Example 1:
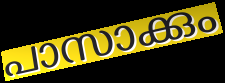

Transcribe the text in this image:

പാസാക്കും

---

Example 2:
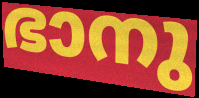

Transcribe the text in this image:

ഭാനു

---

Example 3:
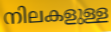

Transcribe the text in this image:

നിലകളുള്ള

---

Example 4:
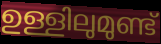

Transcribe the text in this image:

ഉള്ളിലുമുണ്ട്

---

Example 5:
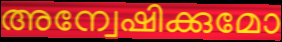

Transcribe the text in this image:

അന്വേഷിക്കുമോ